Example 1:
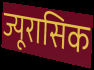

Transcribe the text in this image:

ज्यूरासिक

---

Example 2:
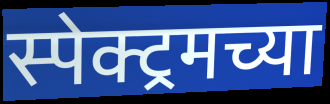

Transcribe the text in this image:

स्पेक्ट्रमच्या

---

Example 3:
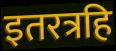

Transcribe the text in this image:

इतरत्रहि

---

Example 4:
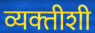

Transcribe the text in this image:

व्यक्‍तीशी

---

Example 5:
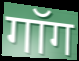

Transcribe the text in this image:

गॉग